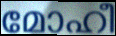
മോഹീ